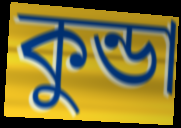
কুন্ডা